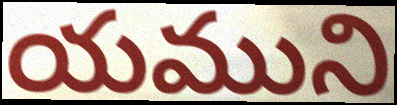
యముని